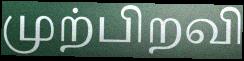
முற்பிறவி